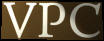
VPC